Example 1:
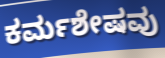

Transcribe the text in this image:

ಕರ್ಮಶೇಷವು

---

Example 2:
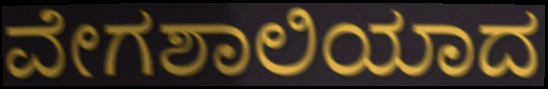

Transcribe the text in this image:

ವೇಗಶಾಲಿಯಾದ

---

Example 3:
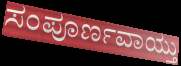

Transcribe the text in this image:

ಸಂಪೂರ್ಣವಾಯ್ತು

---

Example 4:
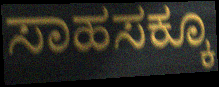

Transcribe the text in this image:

ಸಾಹಸಕ್ಕೂ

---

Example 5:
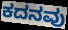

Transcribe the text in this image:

ಕದನವು